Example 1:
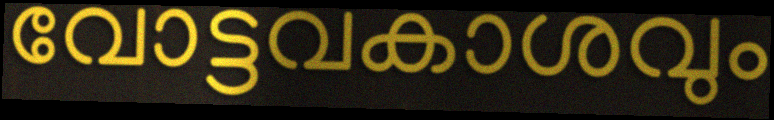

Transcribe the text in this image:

വോട്ടവകാശവും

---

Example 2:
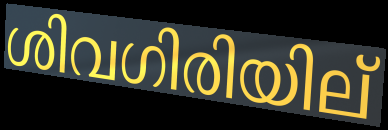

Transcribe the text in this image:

ശിവഗിരിയില്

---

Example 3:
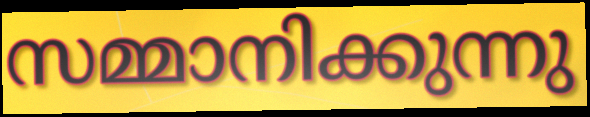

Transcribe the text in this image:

സമ്മാനിക്കുന്നു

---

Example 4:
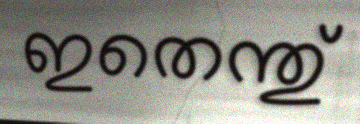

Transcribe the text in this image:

ഇതെന്തു്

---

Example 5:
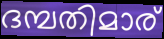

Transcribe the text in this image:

ദമ്പതിമാര്